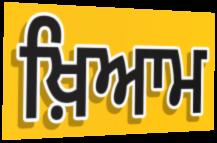
ਖ਼ਿਆਮ